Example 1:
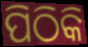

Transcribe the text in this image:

ପିଠିକି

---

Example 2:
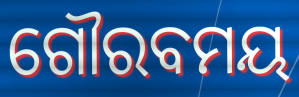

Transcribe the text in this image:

ଗୌରବମୟ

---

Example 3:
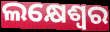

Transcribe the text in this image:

ଲକ୍ଷେଶ୍ୱର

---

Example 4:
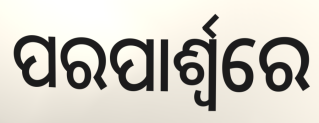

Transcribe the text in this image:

ପରପାର୍ଶ୍ୱରେ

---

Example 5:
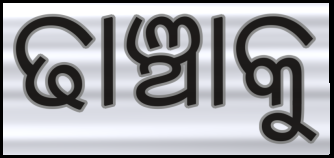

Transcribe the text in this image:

ଢାଞ୍ଚାକୁ